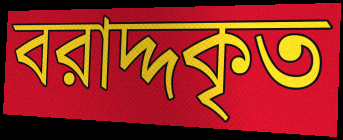
বরাদ্দকৃত